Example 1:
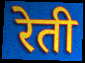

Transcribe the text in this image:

रेती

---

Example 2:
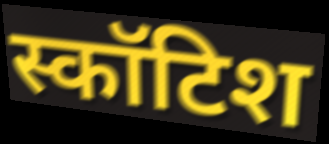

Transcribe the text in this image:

स्कॉटिश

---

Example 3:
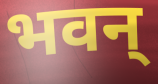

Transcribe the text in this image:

भवन्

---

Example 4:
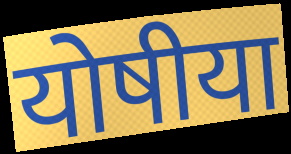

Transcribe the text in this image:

योषीया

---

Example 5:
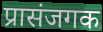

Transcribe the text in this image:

प्रासंजगक